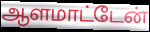
ஆளமாட்டேன்